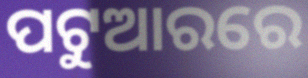
ପଟୁଆରରେ